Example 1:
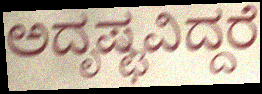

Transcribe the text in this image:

ಅದೃಷ್ಟವಿದ್ದರೆ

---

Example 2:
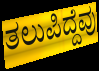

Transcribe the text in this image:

ತಲುಪಿದ್ದೆವು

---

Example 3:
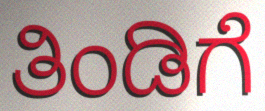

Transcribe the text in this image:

ತಿಂಡಿಗೆ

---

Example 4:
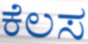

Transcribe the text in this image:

ಕೆಲಸ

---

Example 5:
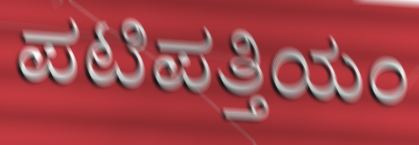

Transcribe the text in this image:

ಪಟಿಪತ್ತಿಯಂ